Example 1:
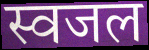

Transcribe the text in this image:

स्वजल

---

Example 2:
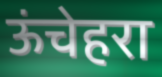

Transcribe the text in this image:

ऊंचेहरा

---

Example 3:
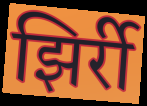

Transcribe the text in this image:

झिर्री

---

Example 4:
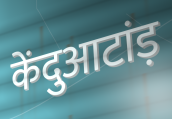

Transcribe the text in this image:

केंदुआटांड़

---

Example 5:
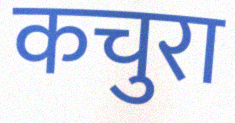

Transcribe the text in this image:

कचुरा